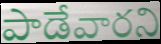
పాడేవారని